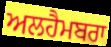
ਅਲਹੈਮਬਰਾ